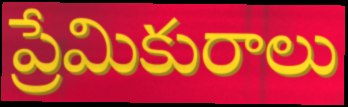
ప్రేమికురాలు